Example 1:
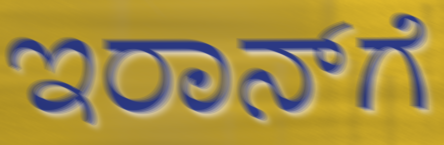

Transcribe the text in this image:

ಇರಾನ್‌ಗೆ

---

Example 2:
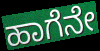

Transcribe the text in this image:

ಹಾಗೆನೇ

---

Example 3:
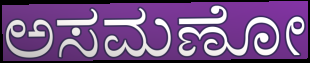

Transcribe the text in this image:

ಅಸಮಣೋ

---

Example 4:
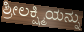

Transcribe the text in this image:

ಶ್ರೀಲಕ್ಷ್ಮಿಯನ್ನು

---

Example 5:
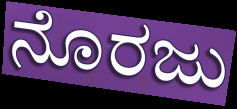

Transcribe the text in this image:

ನೊರಜು